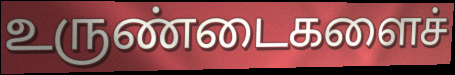
உருண்டைகளைச்